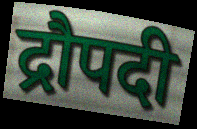
द्रौपदी